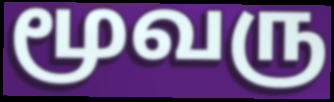
மூவரு